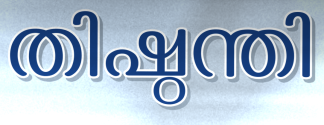
തിഷ്ഠന്തി